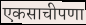
एकसाचीपणा